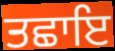
ਤਛਾਇ